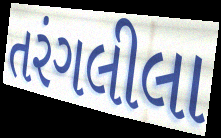
તરંગલીલા